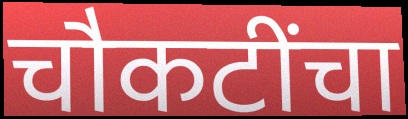
चौकटींचा